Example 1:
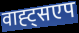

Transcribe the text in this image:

वाह्ट्सएप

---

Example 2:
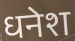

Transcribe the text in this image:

धनेश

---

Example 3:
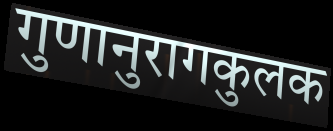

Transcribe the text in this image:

गुणानुरागकुलक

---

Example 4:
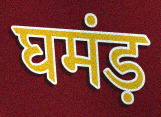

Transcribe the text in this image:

घमंड़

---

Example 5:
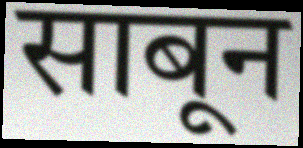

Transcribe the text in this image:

साबून